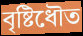
বৃষ্টিধৌত